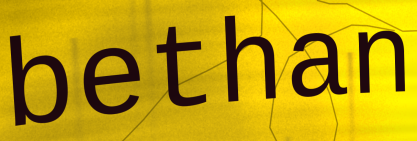
bethan